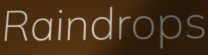
Raindrops